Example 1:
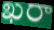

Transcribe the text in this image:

ఖరా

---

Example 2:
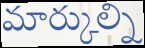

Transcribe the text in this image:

మార్కుల్ని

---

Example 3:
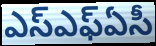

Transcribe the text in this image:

ఎస్ఎఫ్ఏసీ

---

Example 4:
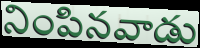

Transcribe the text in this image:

నింపినవాడు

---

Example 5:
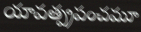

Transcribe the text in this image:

యావత్ప్రపంచమూ